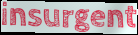
insurgent